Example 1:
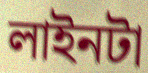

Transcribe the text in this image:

লাইনটা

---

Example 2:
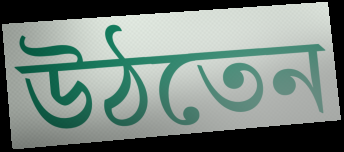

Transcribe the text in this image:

উঠতেন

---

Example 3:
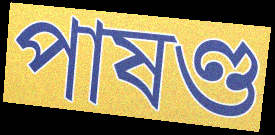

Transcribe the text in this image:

পাষণ্ড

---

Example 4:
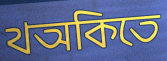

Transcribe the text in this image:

থঅকিতে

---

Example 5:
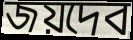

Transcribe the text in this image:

জয়দেব